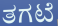
ತಗಟೆ